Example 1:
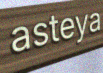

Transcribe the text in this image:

asteya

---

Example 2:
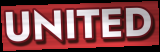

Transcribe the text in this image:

UNITED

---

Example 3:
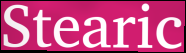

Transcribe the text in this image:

Stearic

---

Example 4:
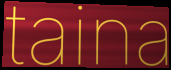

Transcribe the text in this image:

taina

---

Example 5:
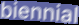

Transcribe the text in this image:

biennial